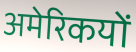
अमेरिकयों